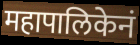
महापालिकेनं